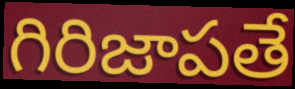
గిరిజాపతే